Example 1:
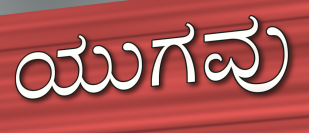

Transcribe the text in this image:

ಯುಗವು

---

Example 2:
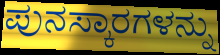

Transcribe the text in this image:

ಪುನಸ್ಕಾರಗಳನ್ನು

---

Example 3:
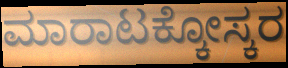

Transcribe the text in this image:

ಮಾರಾಟಕ್ಕೋಸ್ಕರ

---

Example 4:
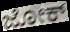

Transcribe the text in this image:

ಜೋಕ್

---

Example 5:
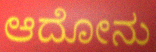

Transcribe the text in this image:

ಆದೋನು